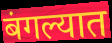
बंगल्यात